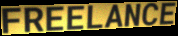
FREELANCE